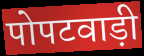
पोपटवाड़ी